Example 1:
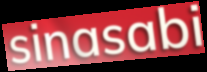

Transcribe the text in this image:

sinasabi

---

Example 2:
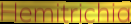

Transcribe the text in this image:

Hemitrichia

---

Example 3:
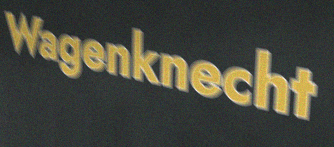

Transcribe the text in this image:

Wagenknecht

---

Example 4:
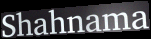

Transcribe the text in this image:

Shahnama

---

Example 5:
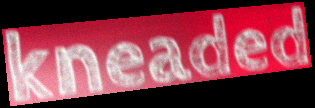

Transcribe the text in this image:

kneaded